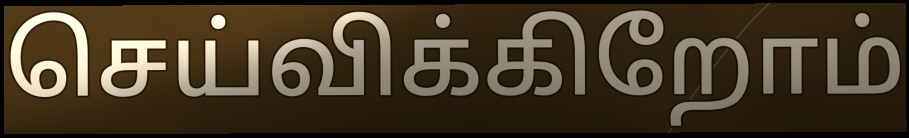
செய்விக்கிறோம்